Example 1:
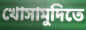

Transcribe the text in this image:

খোসামুদিতে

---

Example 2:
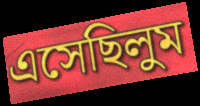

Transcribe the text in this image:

এসেছিলুম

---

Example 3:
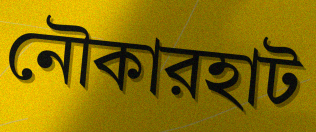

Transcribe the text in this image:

নৌকারহাট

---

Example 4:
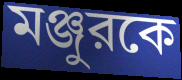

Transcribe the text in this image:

মঞ্জুরকে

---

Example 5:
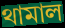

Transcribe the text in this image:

থামাল